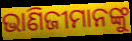
ଭାଣିଜୀମାନଙ୍କୁ